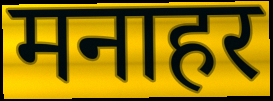
मनाहर